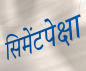
सिमेंटपेक्षा